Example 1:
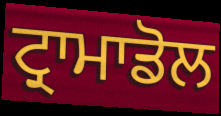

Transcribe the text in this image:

ਟ੍ਰਾਮਾਡੋਲ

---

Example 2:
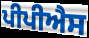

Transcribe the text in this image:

ਪੀਪੀਐਸ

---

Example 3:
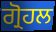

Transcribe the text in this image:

ਗ੍ਰੋਹਲ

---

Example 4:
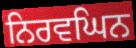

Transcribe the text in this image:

ਨਿਰਵਘਿਨ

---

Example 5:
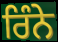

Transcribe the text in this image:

ਰਿੰਨੇ